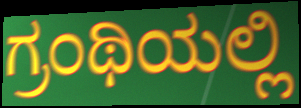
ಗ್ರಂಥಿಯಲ್ಲಿ